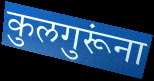
कुलगुरूंना